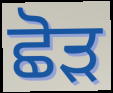
ਛੋੜ